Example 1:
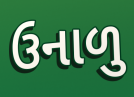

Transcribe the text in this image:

ઉનાળુ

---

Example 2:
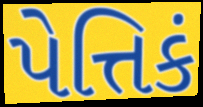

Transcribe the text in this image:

પેત્તિકં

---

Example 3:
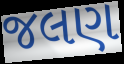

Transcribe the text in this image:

જલણ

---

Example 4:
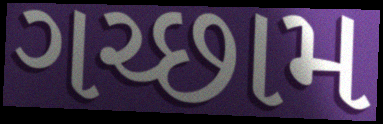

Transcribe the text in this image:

ગચ્છામ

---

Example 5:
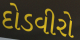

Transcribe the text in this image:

દોડવીરો